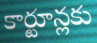
కార్టూన్లకు